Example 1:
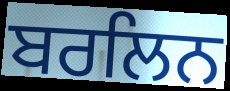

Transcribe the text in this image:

ਬਰਲਿਨ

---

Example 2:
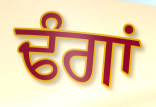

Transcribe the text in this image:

ਢੰਗਾਂ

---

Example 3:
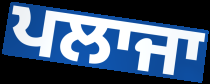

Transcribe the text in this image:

ਪਲਾਜਾ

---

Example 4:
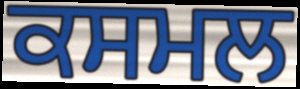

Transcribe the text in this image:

ਕਸਮਲ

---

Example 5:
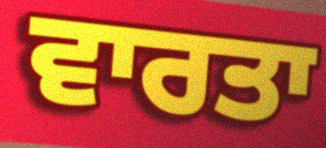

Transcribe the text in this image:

ਵਾਰਤਾ